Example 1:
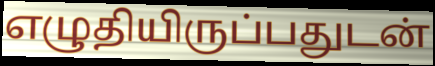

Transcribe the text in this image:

எழுதியிருப்பதுடன்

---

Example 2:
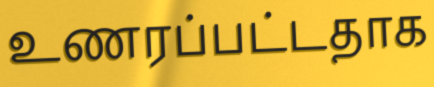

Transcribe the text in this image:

உணரப்பட்டதாக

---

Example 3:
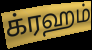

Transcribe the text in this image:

க்ரஹம்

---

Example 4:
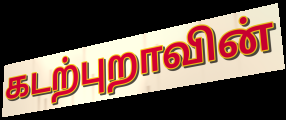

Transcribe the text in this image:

கடற்புறாவின்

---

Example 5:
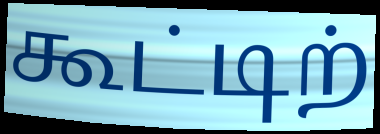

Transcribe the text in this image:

கூட்டிற்